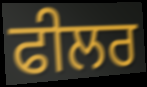
ਫੀਲਰ